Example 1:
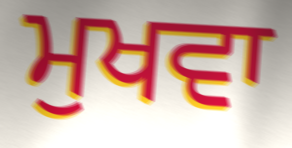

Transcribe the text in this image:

ਮੁਖਵਾ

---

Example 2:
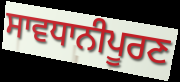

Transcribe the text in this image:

ਸਾਵਧਾਨੀਪੂਰਣ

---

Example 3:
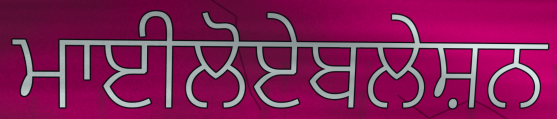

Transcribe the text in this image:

ਮਾਈਲੋਏਬਲੇਸ਼ਨ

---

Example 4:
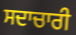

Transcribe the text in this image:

ਸਦਾਚਾਰੀ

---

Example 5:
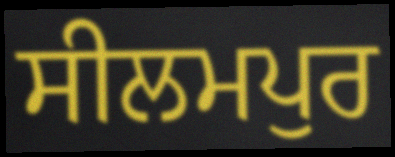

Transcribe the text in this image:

ਸੀਲਮਪੁਰ